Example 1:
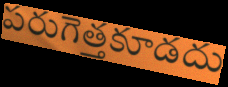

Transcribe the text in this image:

పరుగెత్తకూడదు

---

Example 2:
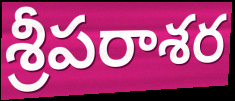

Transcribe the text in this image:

శ్రీపరాశర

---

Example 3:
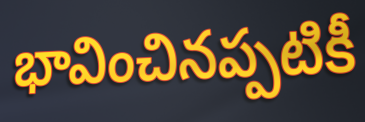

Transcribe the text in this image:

భావించినప్పటికీ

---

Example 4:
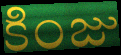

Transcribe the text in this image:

కింజు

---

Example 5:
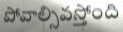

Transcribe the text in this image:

పోవాల్సివస్తోంది